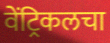
वेंट्रिकलचा